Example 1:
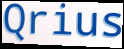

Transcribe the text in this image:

Qrius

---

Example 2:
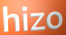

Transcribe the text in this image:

hizo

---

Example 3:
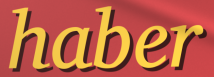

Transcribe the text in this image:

haber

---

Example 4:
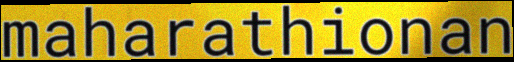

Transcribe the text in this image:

maharathionan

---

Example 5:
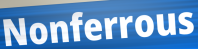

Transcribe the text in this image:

Nonferrous